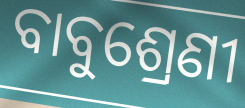
ବାବୁଶ୍ରେଣୀ